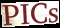
PICs